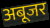
अबूजर